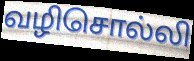
வழிசொல்லி